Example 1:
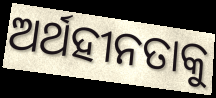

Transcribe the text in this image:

ଅର୍ଥହୀନତାକୁ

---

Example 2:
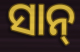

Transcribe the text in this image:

ସାନ୍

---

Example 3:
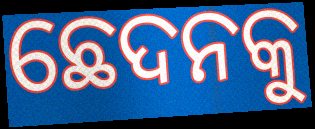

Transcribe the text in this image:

ଛେଦନକୁ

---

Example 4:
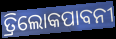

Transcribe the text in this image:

ତ୍ରିଲୋକପାବନୀ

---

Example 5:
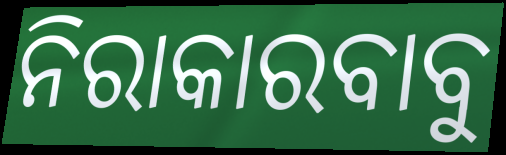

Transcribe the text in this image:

ନିରାକାରବାବୁ